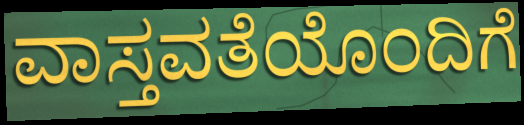
ವಾಸ್ತವತೆಯೊಂದಿಗೆ